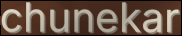
chunekar